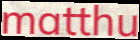
matthu